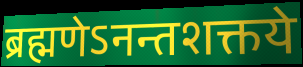
ब्रह्मणेऽनन्तशक्तये